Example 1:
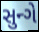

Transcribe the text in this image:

સુન્ગે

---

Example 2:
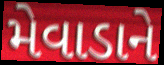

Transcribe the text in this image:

મેવાડાને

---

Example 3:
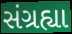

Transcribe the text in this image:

સંગ્રહ્યા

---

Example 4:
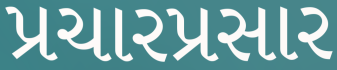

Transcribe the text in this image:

પ્રચારપ્રસાર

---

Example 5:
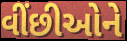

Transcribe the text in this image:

વીંછીઓને